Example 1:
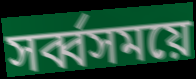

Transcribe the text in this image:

সর্ব্বসময়ে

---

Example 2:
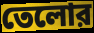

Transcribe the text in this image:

তেলোর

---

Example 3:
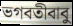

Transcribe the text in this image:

ভগবতীবাবু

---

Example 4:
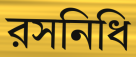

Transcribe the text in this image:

রসনিধি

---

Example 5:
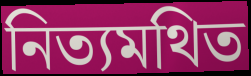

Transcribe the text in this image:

নিত্যমথিত